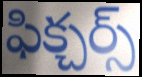
ఫిక్చర్స్